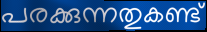
പരക്കുന്നതുകണ്ട്